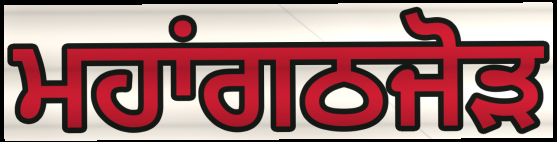
ਮਹਾਂਗਠਜੋਡ਼